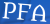
PFA